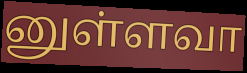
னுள்ளவா